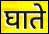
घाते